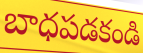
బాధపడకండి